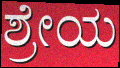
ಶ್ರೇಯ